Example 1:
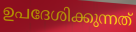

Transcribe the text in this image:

ഉപദേശിക്കുന്നത്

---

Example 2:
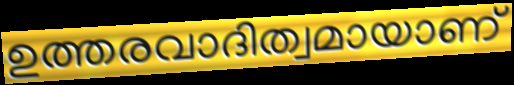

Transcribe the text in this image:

ഉത്തരവാദിത്വമായാണ്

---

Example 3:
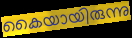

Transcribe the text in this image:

കൈയായിരുന്നു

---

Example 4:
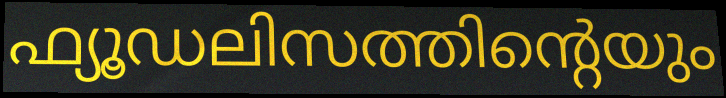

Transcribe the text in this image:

ഫ്യൂഡലിസത്തിന്റെയും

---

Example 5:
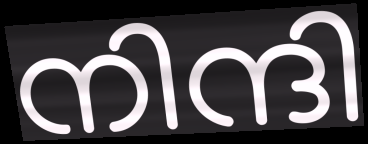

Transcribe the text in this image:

നിന്ദി